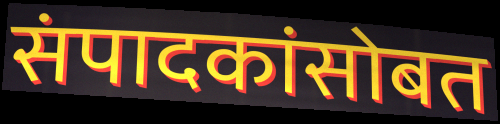
संपादकांसोबत